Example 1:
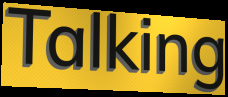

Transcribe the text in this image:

Talking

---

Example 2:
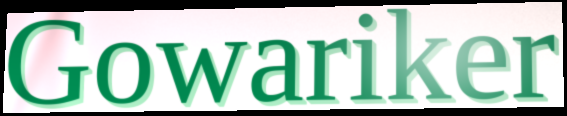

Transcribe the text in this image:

Gowariker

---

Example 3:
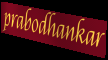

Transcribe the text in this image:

prabodhankar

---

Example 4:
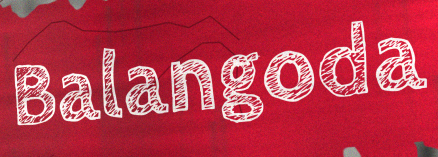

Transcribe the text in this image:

Balangoda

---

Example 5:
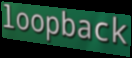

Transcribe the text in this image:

loopback